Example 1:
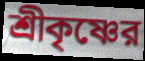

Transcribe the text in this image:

শ্রীকৃষ্ণের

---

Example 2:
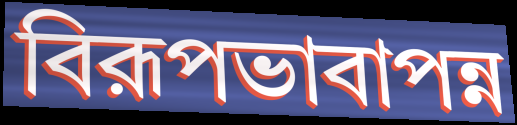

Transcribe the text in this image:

বিরূপভাবাপন্ন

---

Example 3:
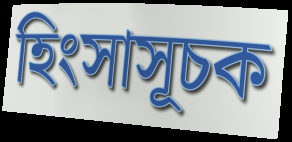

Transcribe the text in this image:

হিংসাসূচক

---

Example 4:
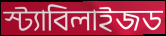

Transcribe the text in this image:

স্ট্যাবিলাইজড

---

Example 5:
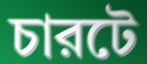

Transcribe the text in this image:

চারটে